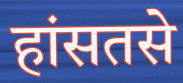
हांसतसे